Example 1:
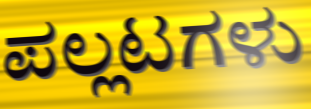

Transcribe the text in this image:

ಪಲ್ಲಟಗಳು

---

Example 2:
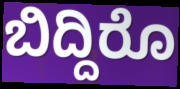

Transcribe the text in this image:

ಬಿದ್ದಿರೊ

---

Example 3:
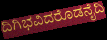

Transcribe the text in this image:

ದಿಗಿಭವಿದರೊಡನೈದಿ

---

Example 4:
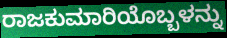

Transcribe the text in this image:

ರಾಜಕುಮಾರಿಯೊಬ್ಬಳನ್ನು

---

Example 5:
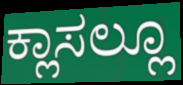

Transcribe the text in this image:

ಕ್ಲಾಸಲ್ಲೂ